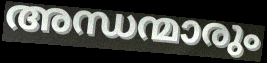
അന്ധന്മാരും